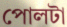
পোলটা